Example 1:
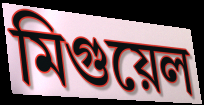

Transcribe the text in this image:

মিগুয়েল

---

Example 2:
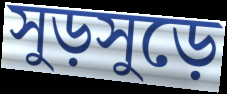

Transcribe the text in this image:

সুড়সুড়ে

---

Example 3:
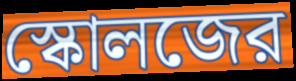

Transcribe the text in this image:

স্কোলজের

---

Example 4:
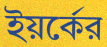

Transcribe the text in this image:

ইয়র্কের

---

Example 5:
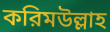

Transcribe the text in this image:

করিমউল্লাহ